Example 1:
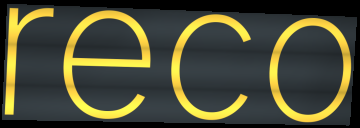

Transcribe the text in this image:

reco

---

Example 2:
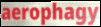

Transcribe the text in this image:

aerophagy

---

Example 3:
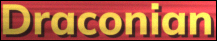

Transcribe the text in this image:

Draconian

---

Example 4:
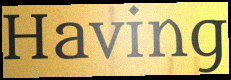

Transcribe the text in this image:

Having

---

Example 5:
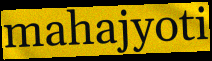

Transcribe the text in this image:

mahajyoti